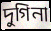
দুগিনা